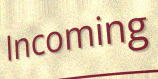
Incoming